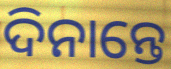
ଦିନାନ୍ତେ